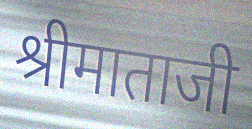
श्रीमाताजी